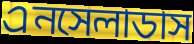
এনসেলাডাস